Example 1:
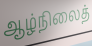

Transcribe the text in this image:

ஆழ்நிலைத்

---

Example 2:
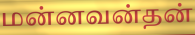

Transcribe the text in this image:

மன்னவன்தன்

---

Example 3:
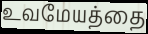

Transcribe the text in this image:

உவமேயத்தை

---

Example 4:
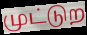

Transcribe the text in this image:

முட்டுற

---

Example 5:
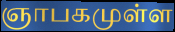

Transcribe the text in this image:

ஞாபகமுள்ள